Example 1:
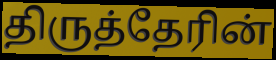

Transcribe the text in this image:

திருத்தேரின்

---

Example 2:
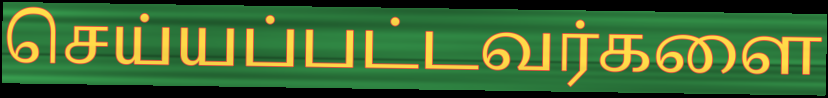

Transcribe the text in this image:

செய்யப்பட்டவர்களை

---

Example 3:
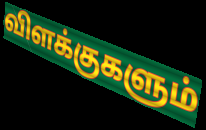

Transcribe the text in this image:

விளக்குகளும்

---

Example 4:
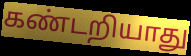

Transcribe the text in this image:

கண்டறியாது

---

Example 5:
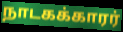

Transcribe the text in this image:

நாடகக்காரர்